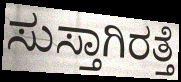
ಸುಸ್ತಾಗಿರತ್ತೆ